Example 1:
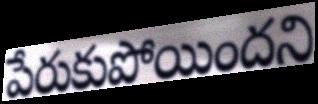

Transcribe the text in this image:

పేరుకుపోయిందని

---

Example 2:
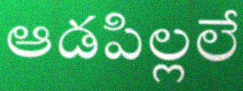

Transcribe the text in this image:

ఆడపిల్లలే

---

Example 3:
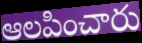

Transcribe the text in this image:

ఆలపించారు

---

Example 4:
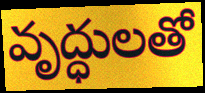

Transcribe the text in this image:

వృద్ధులతో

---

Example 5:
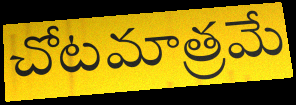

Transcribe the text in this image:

చోటమాత్రమే